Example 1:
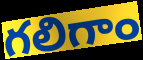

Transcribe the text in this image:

గలిగాం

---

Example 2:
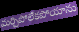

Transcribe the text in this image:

మర్చిపోలేకపోయాను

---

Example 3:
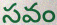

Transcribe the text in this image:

సవం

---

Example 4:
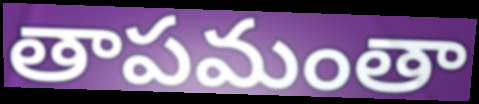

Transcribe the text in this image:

తాపమంతా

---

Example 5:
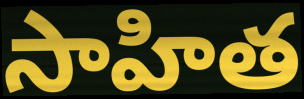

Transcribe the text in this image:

సాహిత